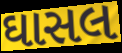
ઘાસલ